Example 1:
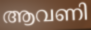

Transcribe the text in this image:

ആവണി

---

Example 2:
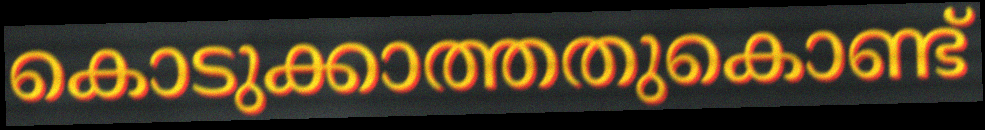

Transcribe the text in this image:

കൊടുക്കാത്തതുകൊണ്ട്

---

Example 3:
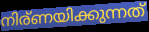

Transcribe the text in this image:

നിര്ണയിക്കുന്നത്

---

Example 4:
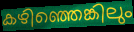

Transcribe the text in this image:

കഴിഞ്ഞെങ്കിലും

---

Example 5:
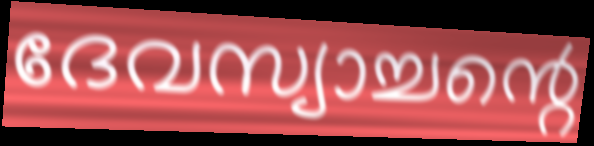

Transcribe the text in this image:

ദേവസ്യാച്ചന്റെ